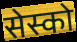
सेस्को